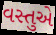
વસ્તુએ